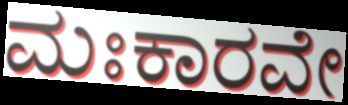
ಮಃಕಾರವೇ